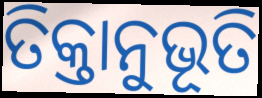
ତିକ୍ତାନୁଭୂତି